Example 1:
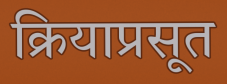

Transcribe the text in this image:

क्रियाप्रसूत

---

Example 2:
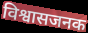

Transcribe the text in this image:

विश्वासजनक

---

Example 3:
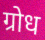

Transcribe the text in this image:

ग्रोध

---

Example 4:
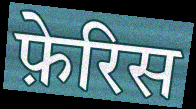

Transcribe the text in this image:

फ़ेरिस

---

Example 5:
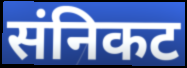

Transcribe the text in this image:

संनिकट